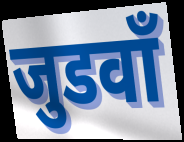
जुडवाँ